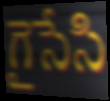
గైసేసి